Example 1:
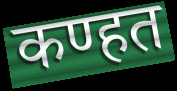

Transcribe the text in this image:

कण्हत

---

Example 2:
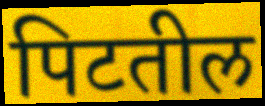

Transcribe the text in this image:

पिटतील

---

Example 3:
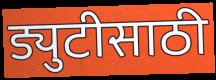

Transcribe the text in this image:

ड्युटीसाठी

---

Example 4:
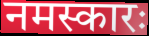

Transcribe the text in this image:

नमस्कारः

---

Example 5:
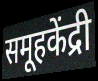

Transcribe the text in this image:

समूहकेंद्री